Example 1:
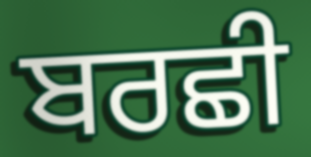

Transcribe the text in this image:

ਬਰਛੀ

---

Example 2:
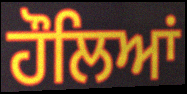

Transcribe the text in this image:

ਹੌਲਿਆਂ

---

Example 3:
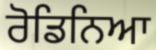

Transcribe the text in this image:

ਰੋਡਿਨਿਆ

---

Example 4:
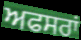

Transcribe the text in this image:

ਅਫਸਰਾਂ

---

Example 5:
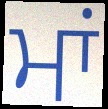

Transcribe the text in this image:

ਮਾਂ